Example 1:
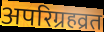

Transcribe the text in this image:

अपरिग्रहव्रत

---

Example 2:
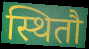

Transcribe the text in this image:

स्थितौ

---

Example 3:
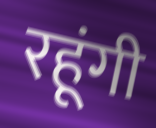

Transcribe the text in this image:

रहूंगी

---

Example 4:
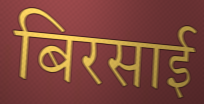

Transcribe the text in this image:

बिरसाई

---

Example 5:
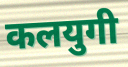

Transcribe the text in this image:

कलयुगी